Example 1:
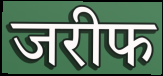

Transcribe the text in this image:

जरीफ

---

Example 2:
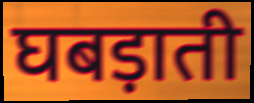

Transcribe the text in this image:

घबड़ाती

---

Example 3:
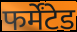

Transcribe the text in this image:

फर्मेंटेड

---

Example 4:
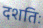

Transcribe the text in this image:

दशतिः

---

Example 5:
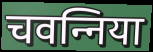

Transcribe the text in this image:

चवन्निया